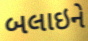
બલાઇને